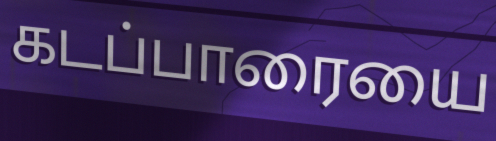
கடப்பாரையை